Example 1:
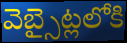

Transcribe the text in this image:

వెబ్సైట్లలోకి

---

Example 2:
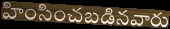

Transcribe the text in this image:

హింసించబడినవారు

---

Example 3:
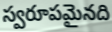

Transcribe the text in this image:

స్వరూపమైనది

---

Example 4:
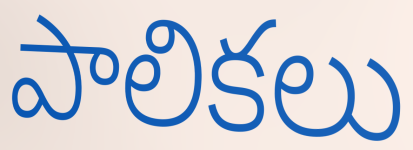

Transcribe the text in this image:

పాలికలు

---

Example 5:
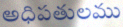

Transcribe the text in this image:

అధిపతులము